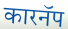
कारनॅप